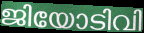
ജിയോടിവി